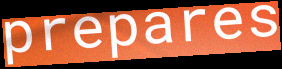
prepares